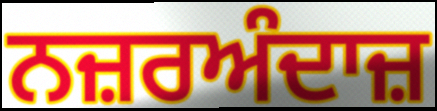
ਨਜ਼ਰਅੰਦਾਜ਼